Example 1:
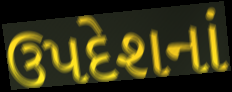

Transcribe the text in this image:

ઉપદેશનાં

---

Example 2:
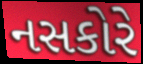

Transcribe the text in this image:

નસકોરે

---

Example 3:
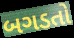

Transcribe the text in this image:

બગડતો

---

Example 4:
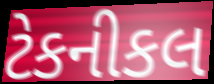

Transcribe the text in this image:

ટેકનીકલ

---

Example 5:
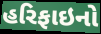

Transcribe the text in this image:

હરિફાઇનો